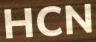
HCN